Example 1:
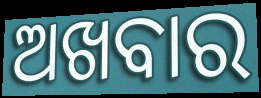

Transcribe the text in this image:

ଅଖବାର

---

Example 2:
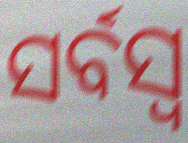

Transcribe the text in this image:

ସର୍ବସ୍ୱ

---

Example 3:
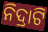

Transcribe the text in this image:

ନିଦ୍ରାଟି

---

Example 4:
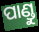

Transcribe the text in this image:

ପାଣ୍ଡୁ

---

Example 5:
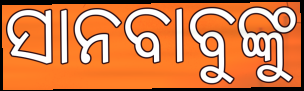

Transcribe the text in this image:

ସାନବାବୁଙ୍କୁ